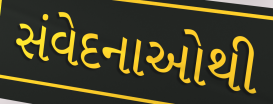
સંવેદનાઓથી